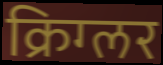
क्रिग्लर